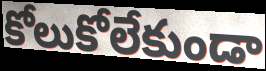
కోలుకోలేకుండా